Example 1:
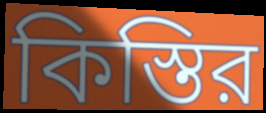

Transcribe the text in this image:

কিস্তির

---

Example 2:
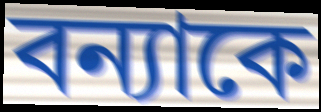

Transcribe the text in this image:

বন্যাকে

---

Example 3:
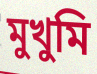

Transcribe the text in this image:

মুখুমি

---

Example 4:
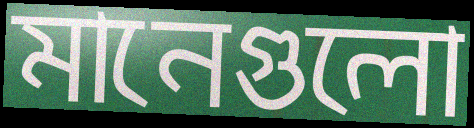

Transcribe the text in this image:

মানেগুলো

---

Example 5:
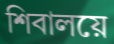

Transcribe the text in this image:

শিবালয়ে